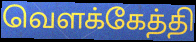
வெளக்கேத்தி